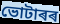
ভোটাৰৰ